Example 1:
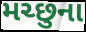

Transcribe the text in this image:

મચ્છુના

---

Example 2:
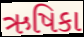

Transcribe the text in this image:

ઋષિકા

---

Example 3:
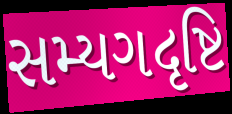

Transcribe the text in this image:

સમ્યગદૃષ્ટિ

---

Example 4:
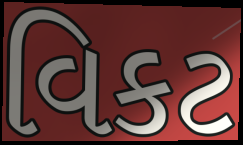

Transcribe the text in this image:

વિકટ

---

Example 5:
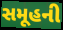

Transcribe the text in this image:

સમૂહની